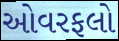
ઓવરફલો